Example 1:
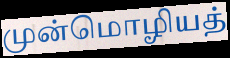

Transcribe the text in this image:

முன்மொழியத்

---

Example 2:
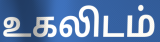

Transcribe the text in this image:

உகலிடம்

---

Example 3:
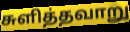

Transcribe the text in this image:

சுளித்தவாறு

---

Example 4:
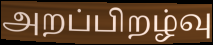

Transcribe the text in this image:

அறப்பிறழ்வு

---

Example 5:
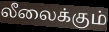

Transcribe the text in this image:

லீலைக்கும்